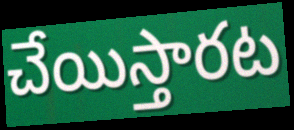
చేయిస్తారట